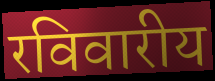
रविवारीय